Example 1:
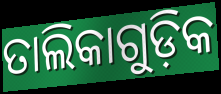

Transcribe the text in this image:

ତାଲିକାଗୁଡ଼ିକ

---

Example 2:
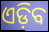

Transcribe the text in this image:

ଏଡ଼ିବ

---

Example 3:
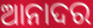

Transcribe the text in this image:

ଆନାଦର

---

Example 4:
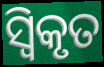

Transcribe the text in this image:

ସ୍ଵିକୃତ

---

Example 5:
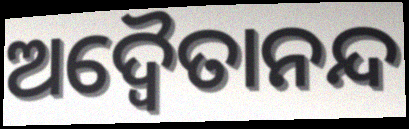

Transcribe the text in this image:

ଅଦ୍ଵୈତାନନ୍ଦ